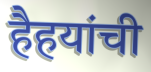
हैहयांची